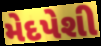
મેદપેશી